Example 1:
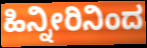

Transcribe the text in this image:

ಹಿನ್ನೀರಿನಿಂದ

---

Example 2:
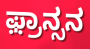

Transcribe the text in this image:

ಫ಼್ರಾನ್ಸನ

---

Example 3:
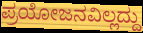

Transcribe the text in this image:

ಪ್ರಯೋಜನವಿಲ್ಲದ್ದು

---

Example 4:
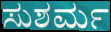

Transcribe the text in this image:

ಸುಶರ್ಮ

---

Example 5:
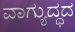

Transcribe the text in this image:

ವಾಗ್ಯುದ್ಧದ